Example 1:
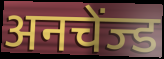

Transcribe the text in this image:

अनचेंज्ड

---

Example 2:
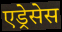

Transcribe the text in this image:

एड्रेसेस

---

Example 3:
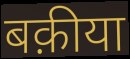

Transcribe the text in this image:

बक़ीया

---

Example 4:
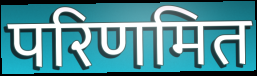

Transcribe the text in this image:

परिणमित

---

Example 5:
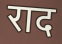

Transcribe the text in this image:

राद